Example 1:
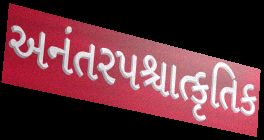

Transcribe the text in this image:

અનંતરપશ્ચાત્કૃતિક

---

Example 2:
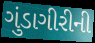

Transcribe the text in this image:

ગુંડાગીરીની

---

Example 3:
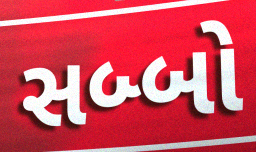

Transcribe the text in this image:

સબ્બો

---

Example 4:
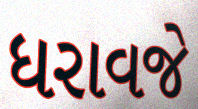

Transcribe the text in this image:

ધરાવજે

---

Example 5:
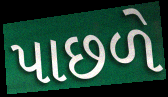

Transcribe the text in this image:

પાછળે